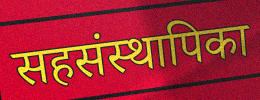
सहसंस्थापिका